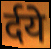
र्दये